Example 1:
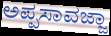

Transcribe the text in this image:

ಅಪ್ಪಸಾವಜ್ಜಾ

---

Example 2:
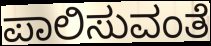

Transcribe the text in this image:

ಪಾಲಿಸುವಂತೆ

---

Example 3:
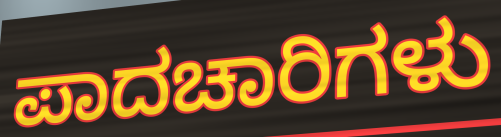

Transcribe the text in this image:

ಪಾದಚಾರಿಗಳು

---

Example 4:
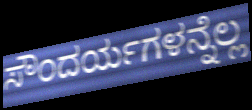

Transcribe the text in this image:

ಸೌಂದರ್ಯಗಳನ್ನೆಲ್ಲ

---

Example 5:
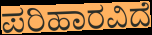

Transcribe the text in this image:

ಪರಿಹಾರವಿದೆ